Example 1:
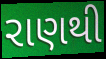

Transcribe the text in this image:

રાણથી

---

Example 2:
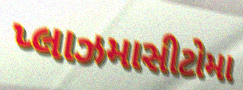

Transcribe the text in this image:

પ્લાઝમાસીટોમા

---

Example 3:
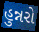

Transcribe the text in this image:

હુન્નરો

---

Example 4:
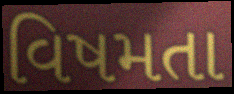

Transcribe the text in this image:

વિષમતા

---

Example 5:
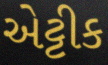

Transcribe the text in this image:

એટ્ટીક